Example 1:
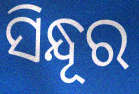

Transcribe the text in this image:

ସିନ୍ଧୂର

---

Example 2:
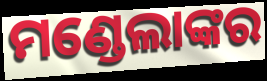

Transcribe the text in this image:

ମଣ୍ଡେଲାଙ୍କର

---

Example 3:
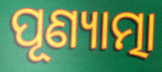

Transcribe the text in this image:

ପୂଣ୍ୟାତ୍ମା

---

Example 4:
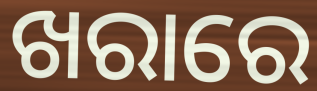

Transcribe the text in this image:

ଖରାରେ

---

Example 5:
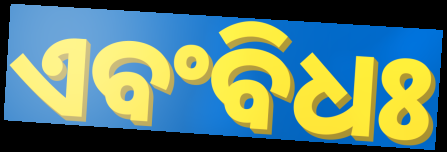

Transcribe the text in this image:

ଏବଂବିଧଃ